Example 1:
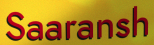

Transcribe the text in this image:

Saaransh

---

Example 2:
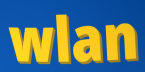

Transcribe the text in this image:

wlan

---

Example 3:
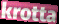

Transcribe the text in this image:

krotta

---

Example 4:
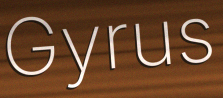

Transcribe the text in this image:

Gyrus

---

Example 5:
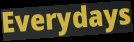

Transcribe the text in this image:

Everydays